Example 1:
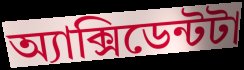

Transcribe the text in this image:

অ্যাক্সিডেন্টটা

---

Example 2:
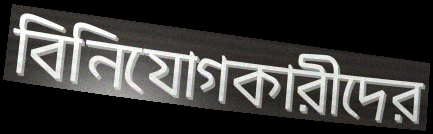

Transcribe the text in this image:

বিনিযোগকারীদের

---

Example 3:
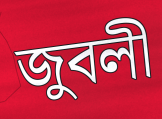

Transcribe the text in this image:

জুবলী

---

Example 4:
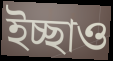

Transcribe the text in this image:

ইচ্ছাও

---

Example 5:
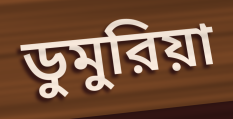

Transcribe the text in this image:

ডুমুরিয়া